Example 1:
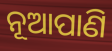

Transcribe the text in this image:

ନୂଆପାଣି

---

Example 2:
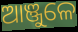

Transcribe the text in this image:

ଆଞ୍ଜୁଳେ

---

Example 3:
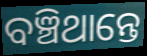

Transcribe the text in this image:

ବଞ୍ଚିଥାନ୍ତେ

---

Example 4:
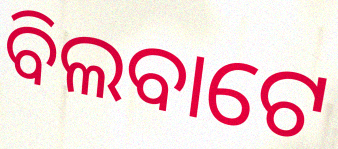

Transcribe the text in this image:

ବିଲବାଟେ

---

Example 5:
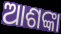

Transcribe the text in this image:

ଆଶଙ୍କା